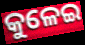
କୁଳେଇ